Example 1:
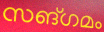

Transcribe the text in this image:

സങ്ഗമം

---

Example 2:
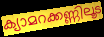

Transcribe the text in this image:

ക്യാമറക്കണ്ണിലൂട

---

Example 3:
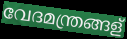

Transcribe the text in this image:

വേദമന്ത്രങ്ങള്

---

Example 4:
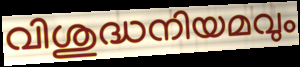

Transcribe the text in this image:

വിശുദ്ധനിയമവും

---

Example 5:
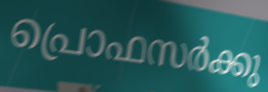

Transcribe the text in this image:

പ്രൊഫസർക്കു